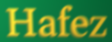
Hafez